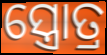
ସ୍ତ୍ରୋତ୍ର